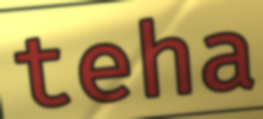
teha